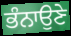
ਭੰਨਾਉਣੇ